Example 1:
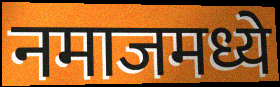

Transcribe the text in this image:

नमाजमध्ये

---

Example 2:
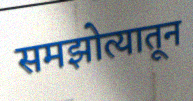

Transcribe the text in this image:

समझोत्यातून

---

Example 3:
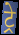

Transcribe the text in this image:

ट्रे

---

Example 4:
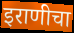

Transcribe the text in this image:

इराणीचा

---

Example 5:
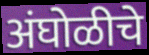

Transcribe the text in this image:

अंघोळीचे